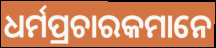
ଧର୍ମପ୍ରଚାରକମାନେ